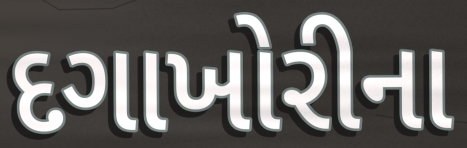
દગાખોરીના